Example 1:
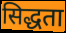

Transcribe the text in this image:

सिद्धता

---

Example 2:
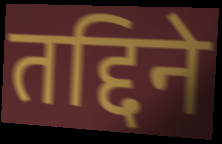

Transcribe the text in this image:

तद्दिने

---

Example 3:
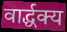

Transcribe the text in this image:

वार्द्धक्य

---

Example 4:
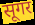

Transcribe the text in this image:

सूगर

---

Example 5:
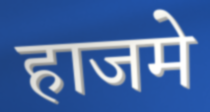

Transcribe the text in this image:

हाजमे